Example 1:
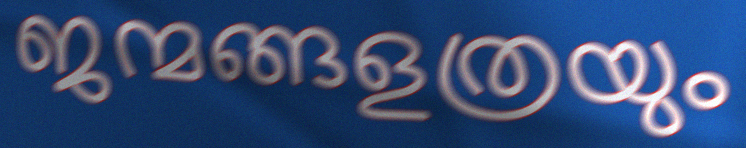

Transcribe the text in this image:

ജന്മങ്ങളത്രയും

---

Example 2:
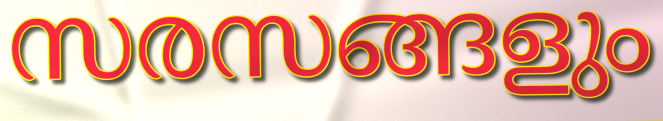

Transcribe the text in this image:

സരസങ്ങളും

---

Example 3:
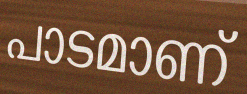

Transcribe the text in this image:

പാടമാണ്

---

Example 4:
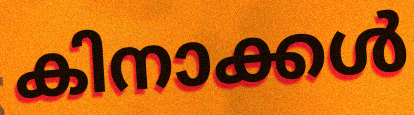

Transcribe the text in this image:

കിനാക്കൾ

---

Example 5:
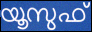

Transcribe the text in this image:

യൂസുഫ്